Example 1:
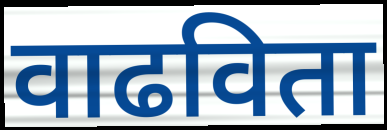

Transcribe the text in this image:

वाढविता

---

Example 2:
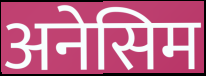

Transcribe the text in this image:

अनेसिम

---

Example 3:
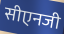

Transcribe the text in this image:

सीएनजी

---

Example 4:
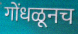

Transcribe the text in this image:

गोंधळूनच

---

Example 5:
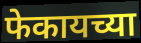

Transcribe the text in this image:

फेकायच्या